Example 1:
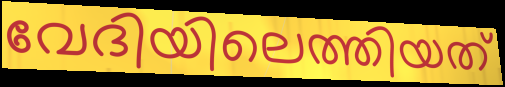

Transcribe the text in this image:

വേദിയിലെത്തിയത്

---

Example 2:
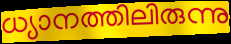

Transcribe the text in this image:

ധ്യാനത്തിലിരുന്നു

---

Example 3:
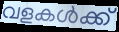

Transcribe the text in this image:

വളകൾക്ക്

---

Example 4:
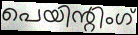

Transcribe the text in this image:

പെയിന്റിംഗ്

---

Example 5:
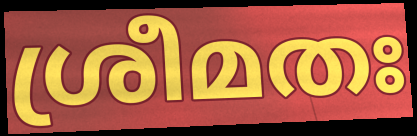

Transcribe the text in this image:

ശ്രീമതഃ